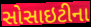
સોસાઇટીના